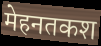
मेहनतकश